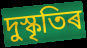
দুস্কৃতিৰ